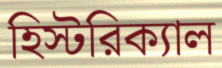
হিস্টরিক্যাল